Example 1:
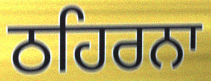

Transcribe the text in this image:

ਠਹਿਰਨਾ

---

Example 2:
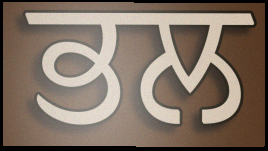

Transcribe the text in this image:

ਭਲ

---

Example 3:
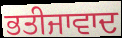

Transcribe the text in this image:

ਭਤੀਜਾਵਾਦ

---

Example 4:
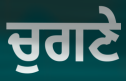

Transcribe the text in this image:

ਚੁਗਣੇ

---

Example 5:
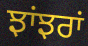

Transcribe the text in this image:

ਝਾਂਝਰਾਂ